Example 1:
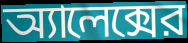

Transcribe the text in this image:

অ্যালেক্সের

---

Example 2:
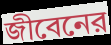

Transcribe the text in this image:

জীবেনের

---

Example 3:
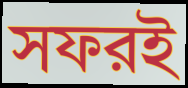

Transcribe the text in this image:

সফরই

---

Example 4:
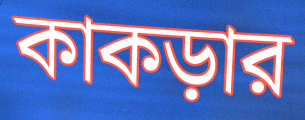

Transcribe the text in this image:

কাকড়ার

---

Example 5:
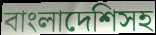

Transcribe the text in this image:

বাংলাদেশিসহ